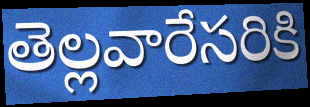
తెల్లవారేసరికి